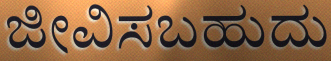
ಜೀವಿಸಬಹುದು